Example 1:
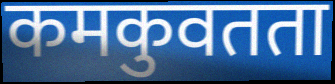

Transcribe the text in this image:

कमकुवतता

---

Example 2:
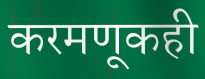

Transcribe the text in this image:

करमणूकही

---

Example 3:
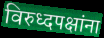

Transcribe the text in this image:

विरुध्दपक्षांना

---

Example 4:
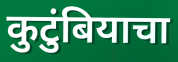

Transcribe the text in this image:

कुटुंबियाचा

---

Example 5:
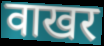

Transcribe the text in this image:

वाखर